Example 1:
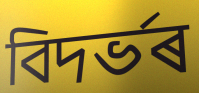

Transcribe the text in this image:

বিদৰ্ভৰ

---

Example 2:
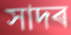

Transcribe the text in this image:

সাদৰ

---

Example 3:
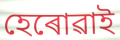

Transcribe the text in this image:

হেৰোৱাই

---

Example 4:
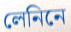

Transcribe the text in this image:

লেনিনে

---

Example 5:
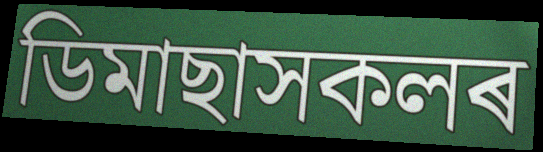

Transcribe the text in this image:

ডিমাছাসকলৰ